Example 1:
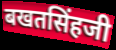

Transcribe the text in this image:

बखतसिंहजी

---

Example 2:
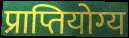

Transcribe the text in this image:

प्राप्तियोग्य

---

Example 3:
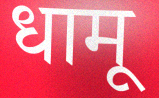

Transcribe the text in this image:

धामू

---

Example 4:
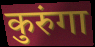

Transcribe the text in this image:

कुरुंगा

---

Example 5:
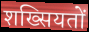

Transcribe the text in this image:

शख्सियतों